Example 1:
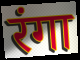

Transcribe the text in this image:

रंगा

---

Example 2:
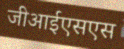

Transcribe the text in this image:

जीआईएसएस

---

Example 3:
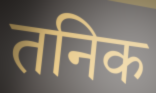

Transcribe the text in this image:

तनिक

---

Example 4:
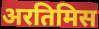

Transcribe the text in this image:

अरतिमिस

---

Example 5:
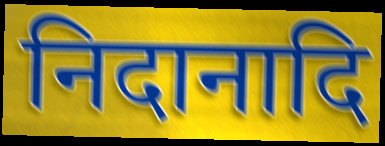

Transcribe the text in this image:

निदानादि